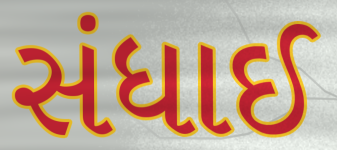
સંધાઈ